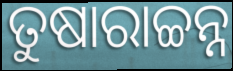
ତୁଷାରାଚ୍ଚନ୍ନ